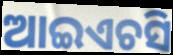
ଆଇଏଚସି